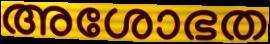
അശോഭത